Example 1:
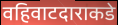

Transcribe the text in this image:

वहिवाटदाराकडे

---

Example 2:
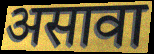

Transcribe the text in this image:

असावा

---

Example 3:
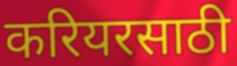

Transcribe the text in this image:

करियरसाठी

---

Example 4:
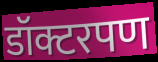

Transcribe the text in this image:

डॉक्टरपण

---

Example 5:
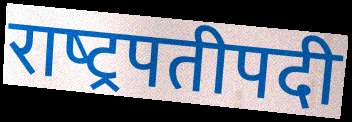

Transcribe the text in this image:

राष्ट्रपतीपदी